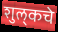
शुल्कचे